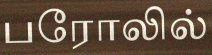
பரோலில்